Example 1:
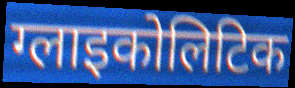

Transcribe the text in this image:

ग्लाइकोलिटिक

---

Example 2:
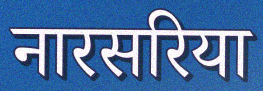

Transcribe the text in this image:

नारसरिया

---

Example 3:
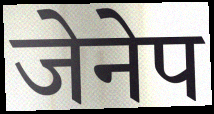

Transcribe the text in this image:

जेनेप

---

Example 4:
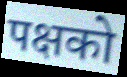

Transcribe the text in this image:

पक्षको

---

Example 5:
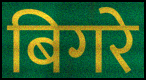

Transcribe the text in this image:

बिगरे